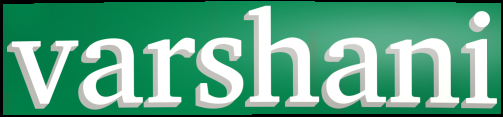
varshani